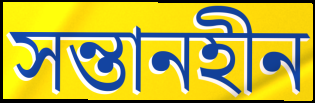
সন্তানহীন